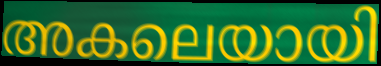
അകലെയായി